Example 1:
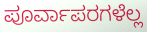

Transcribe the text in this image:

ಪೂರ್ವಾಪರಗಳೆಲ್ಲ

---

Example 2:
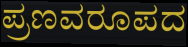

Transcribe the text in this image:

ಪ್ರಣವರೂಪದ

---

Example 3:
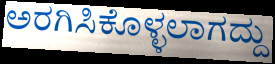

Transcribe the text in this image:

ಅರಗಿಸಿಕೊಳ್ಳಲಾಗದ್ದು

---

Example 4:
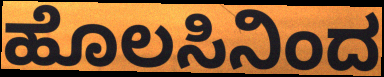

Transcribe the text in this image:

ಹೊಲಸಿನಿಂದ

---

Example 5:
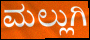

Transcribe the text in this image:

ಮಲ್ಲುಗಿ